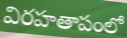
విరహతాపంలో